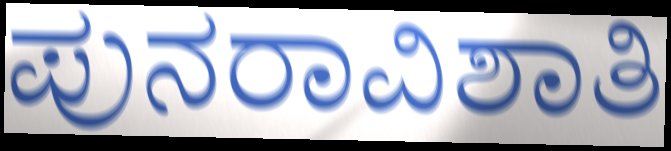
ಪುನರಾವಿಶಾತಿ